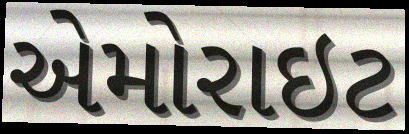
એમોરાઇટ